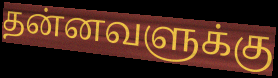
தன்னவளுக்கு